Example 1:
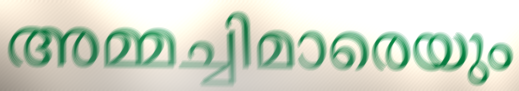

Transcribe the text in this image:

അമ്മച്ചിമാരെയും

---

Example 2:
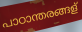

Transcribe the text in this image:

പാഠാന്തരങ്ങള്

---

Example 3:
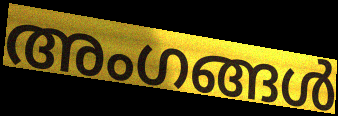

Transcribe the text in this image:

അംഗങ്ങൾ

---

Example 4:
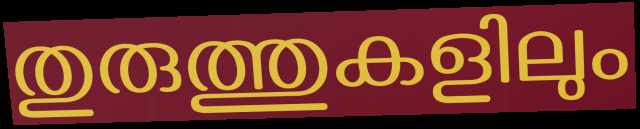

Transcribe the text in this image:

തുരുത്തുകളിലും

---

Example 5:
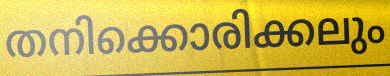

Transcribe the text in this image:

തനിക്കൊരിക്കലും